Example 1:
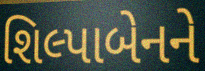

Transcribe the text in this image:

શિલ્પાબેનને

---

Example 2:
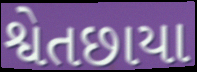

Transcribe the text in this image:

શ્વેતછાયા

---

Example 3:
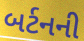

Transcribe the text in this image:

બર્ટનની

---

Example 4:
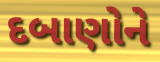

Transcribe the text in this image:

દબાણોને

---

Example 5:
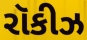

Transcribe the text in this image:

રૉકીઝ